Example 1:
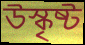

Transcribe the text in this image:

উস্কৃষ্ট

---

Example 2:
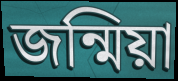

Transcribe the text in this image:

জন্মিয়া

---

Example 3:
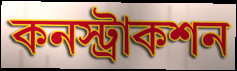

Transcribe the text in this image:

কনস্ট্রাকশন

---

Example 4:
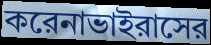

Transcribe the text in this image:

করেনাভাইরাসের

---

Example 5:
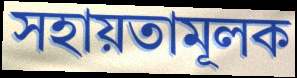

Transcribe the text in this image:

সহায়তামূলক